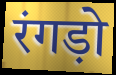
रंगड़ो